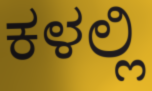
ಕಳಲ್ಲಿ